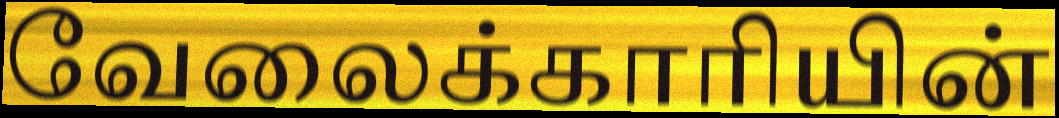
வேலைக்காரியின்